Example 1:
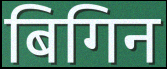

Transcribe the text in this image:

बिगिन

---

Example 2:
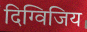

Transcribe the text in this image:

दिग्विजिय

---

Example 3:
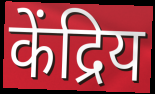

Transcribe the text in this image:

केंद्रिय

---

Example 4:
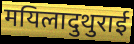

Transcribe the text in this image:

मयिलादुथुराई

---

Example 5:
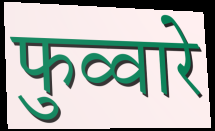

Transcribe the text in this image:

फुव्वारे